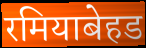
रमियाबेहड